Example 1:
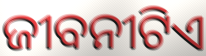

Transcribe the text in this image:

ଜୀବନୀଟିଏ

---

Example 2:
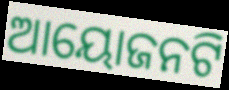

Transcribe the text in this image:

ଆୟୋଜନଟି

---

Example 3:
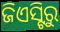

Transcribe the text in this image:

ଜିଏସ୍ଟିରୁ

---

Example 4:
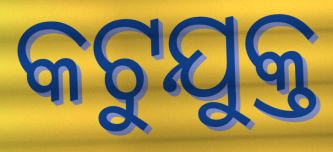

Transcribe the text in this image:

କଟୁଯୁକ୍ତ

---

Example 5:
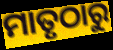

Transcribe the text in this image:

ମାତୃଠାରୁ